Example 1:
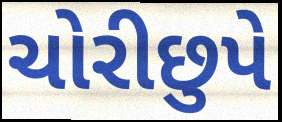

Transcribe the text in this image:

ચોરીછુપે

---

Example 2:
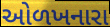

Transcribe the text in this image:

ઓળખનારા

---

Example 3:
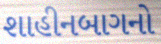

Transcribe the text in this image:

શાહીનબાગનો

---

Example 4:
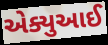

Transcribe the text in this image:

એક્યુઆઈ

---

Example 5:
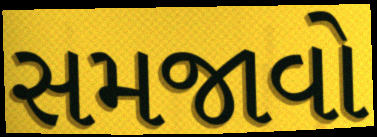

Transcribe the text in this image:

સમજાવો